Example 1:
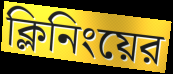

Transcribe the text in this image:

ক্লিনিংয়ের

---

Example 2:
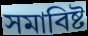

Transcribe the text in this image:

সমাবিষ্ট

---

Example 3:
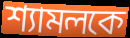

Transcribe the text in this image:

শ্যামলকে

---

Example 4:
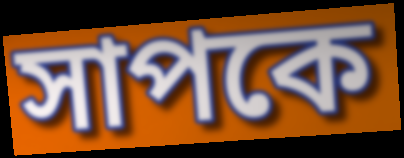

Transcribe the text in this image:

সাপকে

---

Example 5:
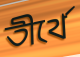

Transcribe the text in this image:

তীর্থে